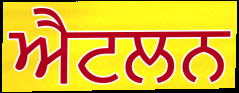
ਐਟਲਨ